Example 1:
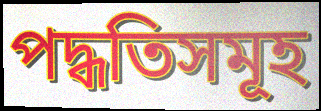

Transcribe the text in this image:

পদ্ধতিসমূহ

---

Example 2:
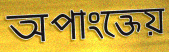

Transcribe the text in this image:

অপাংক্তেয়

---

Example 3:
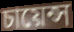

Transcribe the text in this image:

চায়েন্স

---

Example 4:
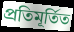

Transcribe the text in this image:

প্ৰতিমূৰ্তিত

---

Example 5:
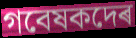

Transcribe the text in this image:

গবেষকদেৰ